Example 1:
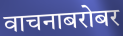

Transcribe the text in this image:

वाचनाबरोबर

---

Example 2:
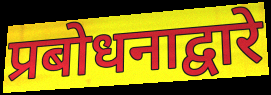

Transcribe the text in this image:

प्रबोधनाद्वारे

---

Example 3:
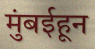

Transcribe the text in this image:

मुंबईहून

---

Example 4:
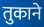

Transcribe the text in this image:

तुकाने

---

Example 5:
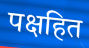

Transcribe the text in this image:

पक्षहित